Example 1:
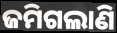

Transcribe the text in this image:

ଜମିଗଲାଣି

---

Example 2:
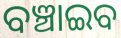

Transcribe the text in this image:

ବଞ୍ଚାଇବ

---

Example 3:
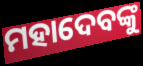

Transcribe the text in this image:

ମହାଦେବଙ୍କୁ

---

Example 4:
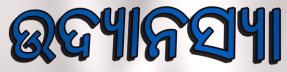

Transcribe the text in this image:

ଉଦ୍ୟାନସ୍ୟା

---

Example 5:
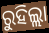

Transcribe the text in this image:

ରୁହିଲ୍ଲା